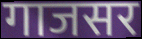
गाजसर